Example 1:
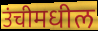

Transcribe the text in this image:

उंचीमधील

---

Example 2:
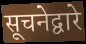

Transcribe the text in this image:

सूचनेद्वारे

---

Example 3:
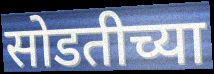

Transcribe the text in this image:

सोडतीच्या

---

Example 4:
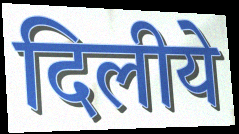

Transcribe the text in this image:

दिलीये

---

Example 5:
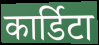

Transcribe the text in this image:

कार्डिटा